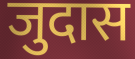
जुदास